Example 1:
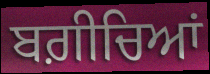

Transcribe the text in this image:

ਬਗ਼ੀਚਿਆਂ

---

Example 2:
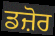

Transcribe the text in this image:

ਡਜ਼ੋਰ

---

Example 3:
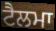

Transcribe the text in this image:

ਟੈਲਮਾ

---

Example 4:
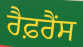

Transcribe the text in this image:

ਰੈਫ਼ਰੈਂਸ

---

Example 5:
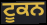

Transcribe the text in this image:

ਟੂਕਨ